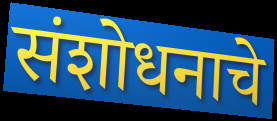
संशोधनाचे